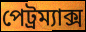
পেট্রম্যাক্স